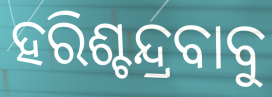
ହରିଶ୍ଚନ୍ଦ୍ରବାବୁ